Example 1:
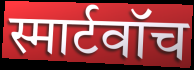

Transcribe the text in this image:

स्मार्टवॉच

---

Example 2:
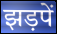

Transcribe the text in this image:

झड़पें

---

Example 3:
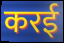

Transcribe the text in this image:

करई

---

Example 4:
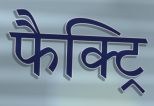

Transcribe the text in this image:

फैक्ट्रि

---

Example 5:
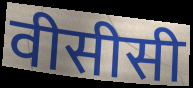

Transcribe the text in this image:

वीसीसी